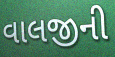
વાલજીની